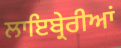
ਲਾਇਬ੍ਰੇਰੀਆਂ